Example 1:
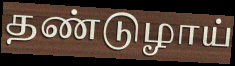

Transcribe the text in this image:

தண்டுழாய்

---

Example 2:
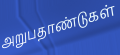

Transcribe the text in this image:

அறுபதாண்டுகள்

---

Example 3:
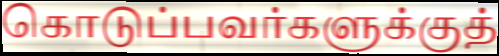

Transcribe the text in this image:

கொடுப்பவர்களுக்குத்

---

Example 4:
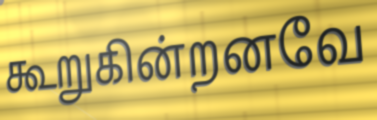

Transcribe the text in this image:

கூறுகின்றனவே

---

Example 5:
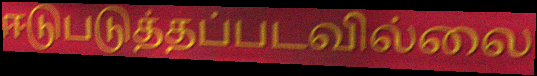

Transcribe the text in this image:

ஈடுபடுத்தப்படவில்லை